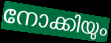
നോക്കിയും